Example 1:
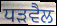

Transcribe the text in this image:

ਧੜਵੈਲ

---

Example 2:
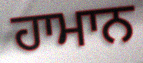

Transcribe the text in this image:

ਹਾਮਾਨ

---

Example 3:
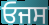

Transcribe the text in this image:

ਓਜਸ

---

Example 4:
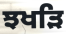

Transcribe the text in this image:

ਝਖੜਿ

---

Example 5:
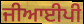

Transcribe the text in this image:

ਜੀਆਈਪੀ